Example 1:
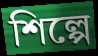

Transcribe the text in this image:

শিল্পে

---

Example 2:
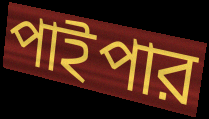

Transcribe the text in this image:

পাইপার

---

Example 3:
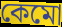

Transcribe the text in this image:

কেমো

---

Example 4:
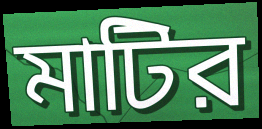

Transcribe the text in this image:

মাটির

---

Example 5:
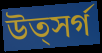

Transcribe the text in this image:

উত্সর্গ